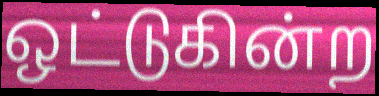
ஒட்டுகின்ற